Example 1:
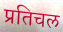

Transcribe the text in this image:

प्रतिचल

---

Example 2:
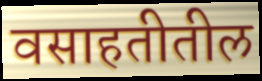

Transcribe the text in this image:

वसाहतीतील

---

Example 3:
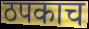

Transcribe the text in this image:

ठपकाच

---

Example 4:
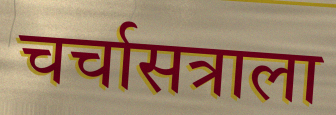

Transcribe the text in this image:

चर्चासत्राला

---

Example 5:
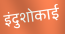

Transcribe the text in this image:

इंदुशोकाई